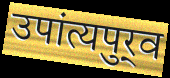
उपांत्यपुर्व